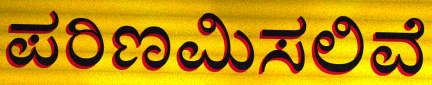
ಪರಿಣಮಿಸಲಿವೆ